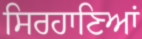
ਸਿਰਹਾਣਿਆਂ